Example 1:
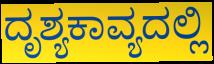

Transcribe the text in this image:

ದೃಶ್ಯಕಾವ್ಯದಲ್ಲಿ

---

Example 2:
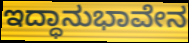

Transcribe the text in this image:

ಇದ್ಧಾನುಭಾವೇನ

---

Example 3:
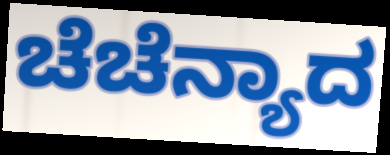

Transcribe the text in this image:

ಚೆಚೆನ್ಯಾದ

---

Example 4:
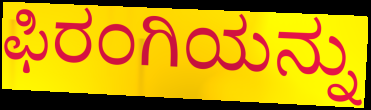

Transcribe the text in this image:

ಫಿರಂಗಿಯನ್ನು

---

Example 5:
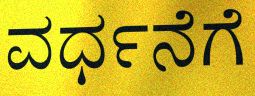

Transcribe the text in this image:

ವರ್ಧನೆಗೆ